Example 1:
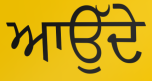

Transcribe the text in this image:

ਆਉੱਦੇ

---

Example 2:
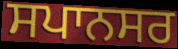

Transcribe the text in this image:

ਸਪਾਨਸਰ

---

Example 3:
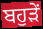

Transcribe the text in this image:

ਬਹੁੜੇਂ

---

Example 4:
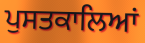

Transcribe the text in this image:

ਪੁਸਤਕਾਲਿਆਂ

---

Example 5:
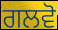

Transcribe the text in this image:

ਗਲਵੋ